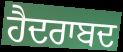
ਹੈਦਰਾਬਦ